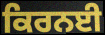
ਕਿਰਨਈ